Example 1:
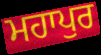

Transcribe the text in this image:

ਮਹਾਪੁਰ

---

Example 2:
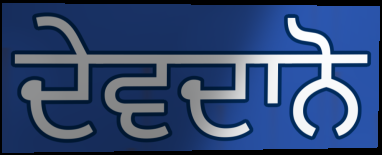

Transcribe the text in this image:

ਦੇਵਦਾਨੋ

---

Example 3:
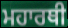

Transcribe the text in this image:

ਮਹਾਰਥੀ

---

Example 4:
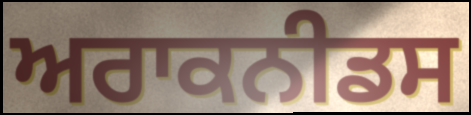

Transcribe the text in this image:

ਅਰਾਕਨੀਡਸ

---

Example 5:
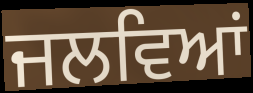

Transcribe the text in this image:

ਜਲਵਿਆਂ